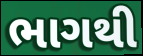
ભાગથી